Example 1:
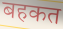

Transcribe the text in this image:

बहकत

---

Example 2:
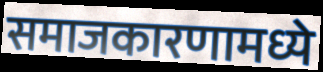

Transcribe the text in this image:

समाजकारणामध्ये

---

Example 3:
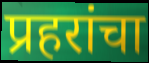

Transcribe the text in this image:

प्रहरांचा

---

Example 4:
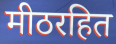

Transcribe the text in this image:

मीठरहित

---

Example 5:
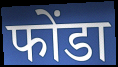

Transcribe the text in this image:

फोंडा